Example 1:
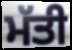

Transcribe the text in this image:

ਮੱਤੀ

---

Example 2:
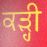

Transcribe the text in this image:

ਕੜ੍ਹੀ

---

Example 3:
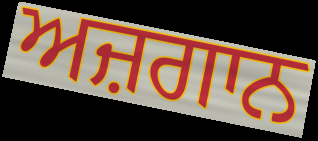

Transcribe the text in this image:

ਅਜ਼ਗਾਨ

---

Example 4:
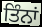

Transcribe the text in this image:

ਤਿੰਨਾਂ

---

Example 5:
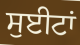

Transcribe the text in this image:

ਸੁਈਟਾਂ